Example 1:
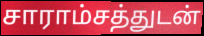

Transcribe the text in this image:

சாராம்சத்துடன்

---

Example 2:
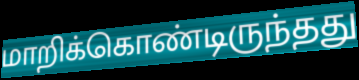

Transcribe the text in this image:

மாறிக்கொண்டிருந்தது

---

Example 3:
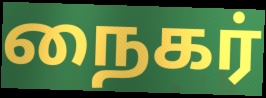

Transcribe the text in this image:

நைகர்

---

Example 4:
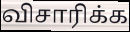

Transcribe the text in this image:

விசாரிக்க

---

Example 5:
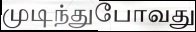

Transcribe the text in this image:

முடிந்துபோவது